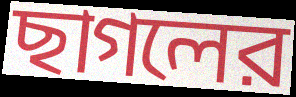
ছাগলের